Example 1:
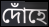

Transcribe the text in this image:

দোঁহে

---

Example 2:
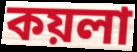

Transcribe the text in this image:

কয়লা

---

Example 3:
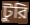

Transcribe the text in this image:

টুরি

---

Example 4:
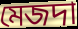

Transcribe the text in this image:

মেজদা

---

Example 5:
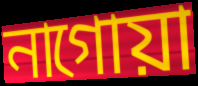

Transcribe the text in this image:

নাগোয়া